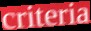
criteria